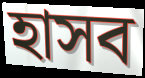
হাসব